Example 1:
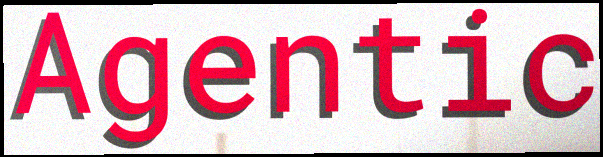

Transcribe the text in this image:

Agentic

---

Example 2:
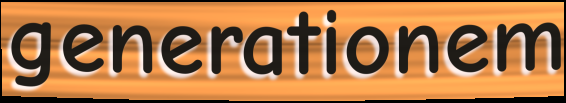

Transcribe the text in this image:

generationem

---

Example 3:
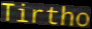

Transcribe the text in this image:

Tirtho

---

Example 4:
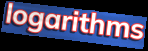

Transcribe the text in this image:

logarithms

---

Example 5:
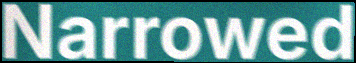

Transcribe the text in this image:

Narrowed